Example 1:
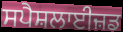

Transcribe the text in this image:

ਸਪੈਸ਼ਲਾਈਜ਼ਡ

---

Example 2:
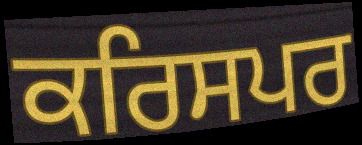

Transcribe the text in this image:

ਕਰਿਸਪਰ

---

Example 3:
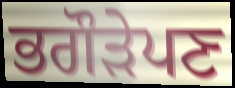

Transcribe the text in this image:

ਭਗੌੜੇਪਣ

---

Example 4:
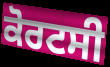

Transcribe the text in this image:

ਕੋਰਟਸੀ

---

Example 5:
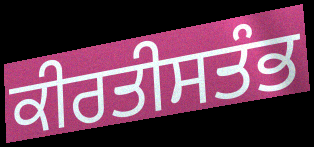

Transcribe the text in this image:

ਕੀਰਤੀਸਤੰਭ